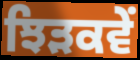
ਝਿੜਕਵੇਂ